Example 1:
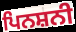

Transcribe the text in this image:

ਪਿਨਸ਼ਨੀ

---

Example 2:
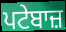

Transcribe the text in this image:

ਪਟੇਬਾਜ਼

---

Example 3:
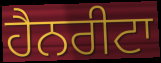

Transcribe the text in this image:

ਹੈਨਰੀਟਾ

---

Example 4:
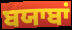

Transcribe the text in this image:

ਬਯਾਬਾਂ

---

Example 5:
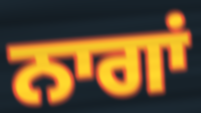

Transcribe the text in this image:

ਨਾਗਾਂ